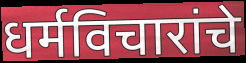
धर्मविचारांचे